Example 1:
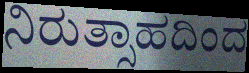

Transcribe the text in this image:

ನಿರುತ್ಸಾಹದಿಂದ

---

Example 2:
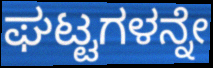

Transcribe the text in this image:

ಘಟ್ಟಗಳನ್ನೇ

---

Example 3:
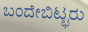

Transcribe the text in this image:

ಬಂದೇಬಿಟ್ಟರು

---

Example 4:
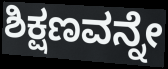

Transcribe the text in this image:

ಶಿಕ್ಷಣವನ್ನೇ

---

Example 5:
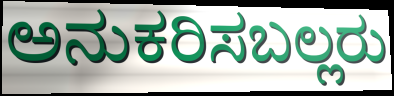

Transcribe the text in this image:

ಅನುಕರಿಸಬಲ್ಲರು